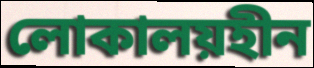
লোকালয়হীন